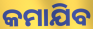
କମାଯିବ